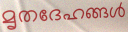
മൃതദേഹങ്ങൾ